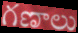
గణాలు